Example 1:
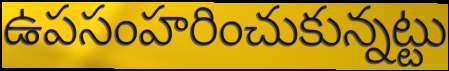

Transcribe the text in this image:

ఉపసంహరించుకున్నట్టు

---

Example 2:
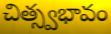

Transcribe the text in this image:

చిత్స్వభావం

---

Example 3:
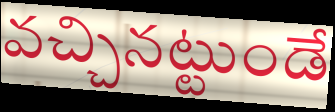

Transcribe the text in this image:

వచ్చినట్టుండే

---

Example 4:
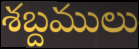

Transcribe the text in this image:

శబ్దములు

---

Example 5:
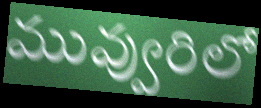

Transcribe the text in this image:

మువ్వురిలో